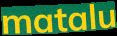
matalu